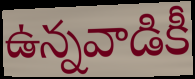
ఉన్నవాడికీ